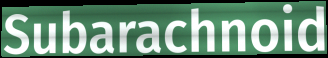
Subarachnoid